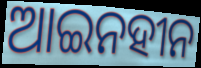
ଆଇନହୀନ